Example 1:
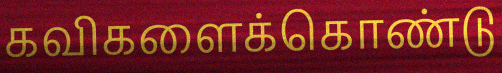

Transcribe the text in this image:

கவிகளைக்கொண்டு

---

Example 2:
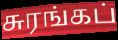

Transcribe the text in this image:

சுரங்கப்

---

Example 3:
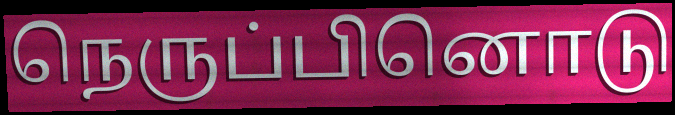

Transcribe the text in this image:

நெருப்பினொடு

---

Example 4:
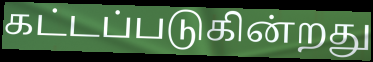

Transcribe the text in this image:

கட்டப்படுகின்றது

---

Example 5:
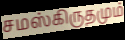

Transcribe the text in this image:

சமஸ்கிருதமும்